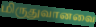
மிருதுவானவை